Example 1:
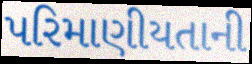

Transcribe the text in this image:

પરિમાણીયતાની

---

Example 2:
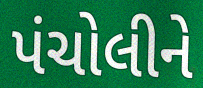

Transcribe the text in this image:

પંચોલીને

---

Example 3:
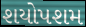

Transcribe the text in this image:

શયોપશમ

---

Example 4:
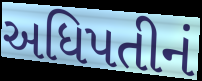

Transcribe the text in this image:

અધિપતીનં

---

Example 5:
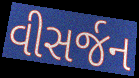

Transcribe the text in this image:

વીસર્જન